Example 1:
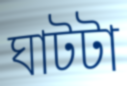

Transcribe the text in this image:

ঘাটটা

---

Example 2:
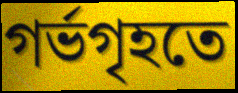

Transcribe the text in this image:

গর্ভগৃহতে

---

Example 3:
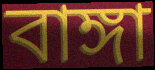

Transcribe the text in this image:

বাঙ্গা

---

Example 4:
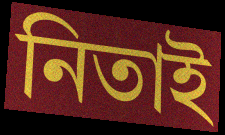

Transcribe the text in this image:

নিতাই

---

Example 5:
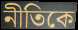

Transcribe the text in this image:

নীতিকে